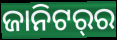
ଜାନିଟର୍‌ର